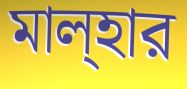
মাল্হার